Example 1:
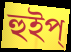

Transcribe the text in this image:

হুইপ্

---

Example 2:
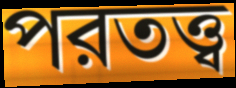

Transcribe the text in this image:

পরতত্ত্ব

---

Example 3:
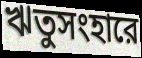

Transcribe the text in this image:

ঋতুসংহারে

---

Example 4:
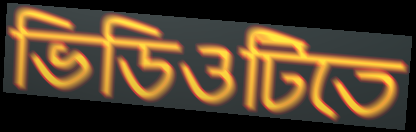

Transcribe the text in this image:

ভিডিওটিতে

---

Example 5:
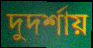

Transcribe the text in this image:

দুদর্শায়